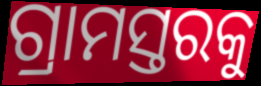
ଗ୍ରାମସ୍ତରକୁ